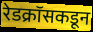
रेडक्रॉसकडून